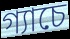
গ্যাচে